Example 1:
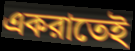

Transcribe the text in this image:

একরাতেই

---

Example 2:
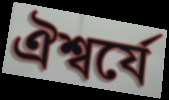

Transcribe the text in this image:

ঐশ্বর্যে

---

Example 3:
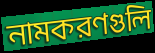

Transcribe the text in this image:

নামকরণগুলি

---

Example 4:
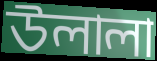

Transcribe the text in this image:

উলালা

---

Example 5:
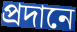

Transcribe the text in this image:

প্রদানে